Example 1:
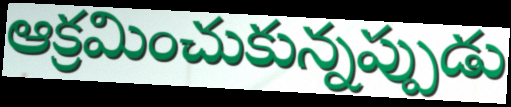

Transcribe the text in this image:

ఆక్రమించుకున్నప్పుడు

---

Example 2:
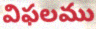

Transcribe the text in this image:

విఫలము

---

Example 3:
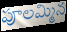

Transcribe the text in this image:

పూలమ్మిన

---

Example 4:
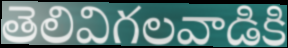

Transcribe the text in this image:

తెలివిగలవాడికి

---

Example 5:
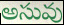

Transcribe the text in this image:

అసువు